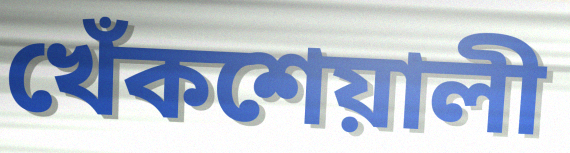
খেঁকশেয়ালী